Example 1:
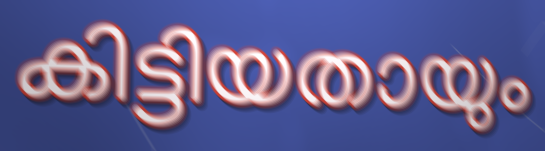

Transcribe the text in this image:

കിട്ടിയതായും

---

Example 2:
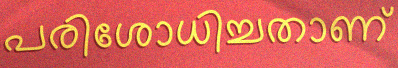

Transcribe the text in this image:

പരിശോധിച്ചതാണ്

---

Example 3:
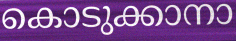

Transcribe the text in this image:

കൊടുക്കാനാ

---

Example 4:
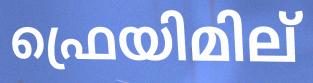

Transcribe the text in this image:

ഫ്രെയിമില്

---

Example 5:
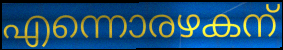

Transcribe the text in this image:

എന്നൊരഴകന്